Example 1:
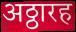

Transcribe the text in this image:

अठ्ठारह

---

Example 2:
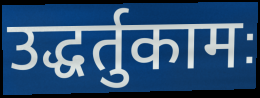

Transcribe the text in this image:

उद्धर्तुकामः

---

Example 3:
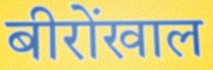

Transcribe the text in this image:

बीरोंखाल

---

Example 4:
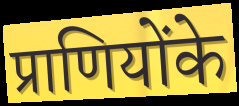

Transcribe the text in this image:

प्राणियोंके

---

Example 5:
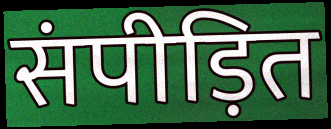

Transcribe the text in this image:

संपीड़ित